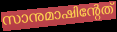
സാനുമാഷിന്റേത്